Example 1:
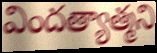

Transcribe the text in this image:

విందత్యాత్మని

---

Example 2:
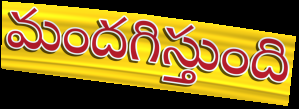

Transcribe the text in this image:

మందగిస్తుంది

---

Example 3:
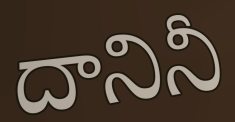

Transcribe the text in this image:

దానినీ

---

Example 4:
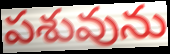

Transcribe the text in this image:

పశువును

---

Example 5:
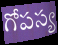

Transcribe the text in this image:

గోపస్య